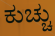
ಕುಚ್ಚು